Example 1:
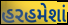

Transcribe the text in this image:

હરહમેશાં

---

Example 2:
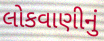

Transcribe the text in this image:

લોકવાણીનું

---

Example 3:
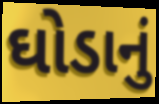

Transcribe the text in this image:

ઘોડાનું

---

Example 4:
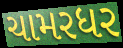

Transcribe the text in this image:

ચામરધર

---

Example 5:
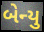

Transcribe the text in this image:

બેન્યુ